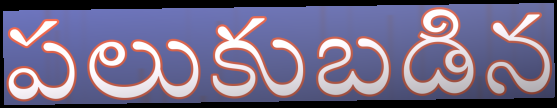
పలుకుబడిన